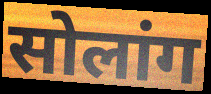
सोलांग